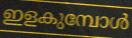
ഇളകുമ്പോൾ